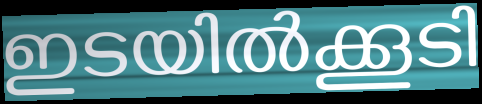
ഇടയിൽക്കൂടി